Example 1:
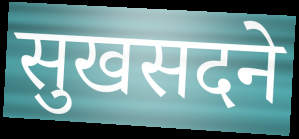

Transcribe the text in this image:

सुखसदने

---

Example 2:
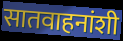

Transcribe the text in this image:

सातवाहनांशी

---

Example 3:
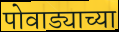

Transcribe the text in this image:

पोवाड्याच्या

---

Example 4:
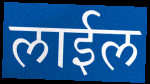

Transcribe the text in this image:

लाईल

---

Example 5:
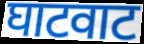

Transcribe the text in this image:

घाटवाट